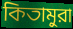
কিতামুরা